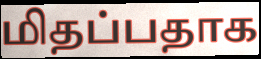
மிதப்பதாக